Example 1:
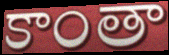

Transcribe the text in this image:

కాంతా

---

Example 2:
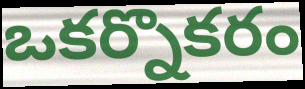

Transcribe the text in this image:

ఒకర్నొకరం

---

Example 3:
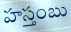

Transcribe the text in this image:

హస్తంబు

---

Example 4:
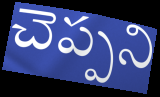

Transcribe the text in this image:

చెప్పని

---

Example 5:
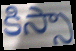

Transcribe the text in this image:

కిస్సా